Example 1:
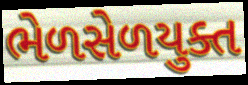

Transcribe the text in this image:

ભેળસેળયુક્ત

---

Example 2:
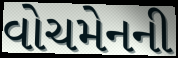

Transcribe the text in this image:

વોચમેનની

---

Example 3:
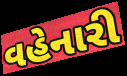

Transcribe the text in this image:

વહેનારી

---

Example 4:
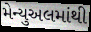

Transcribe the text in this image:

મેન્યુઅલમાંથી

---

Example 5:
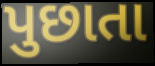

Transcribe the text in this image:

પુછાતા